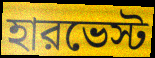
হারভেস্ট